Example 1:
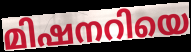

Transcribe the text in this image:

മിഷനറിയെ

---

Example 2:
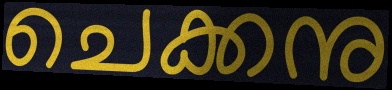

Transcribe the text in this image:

ചെക്കനു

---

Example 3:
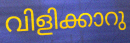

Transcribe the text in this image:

വിളിക്കാറു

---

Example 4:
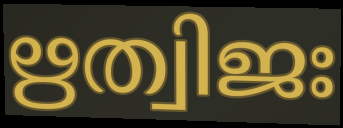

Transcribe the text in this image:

ഋത്വിജഃ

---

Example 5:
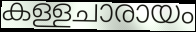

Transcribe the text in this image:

കള്ളചാരായം